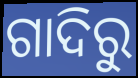
ଗାଦିରୁ